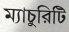
ম্যাচুরিটি